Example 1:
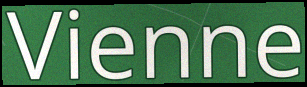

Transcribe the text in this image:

Vienne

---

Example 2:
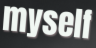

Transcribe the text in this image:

myself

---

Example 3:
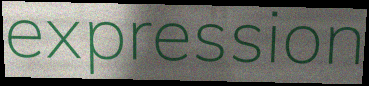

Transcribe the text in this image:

expression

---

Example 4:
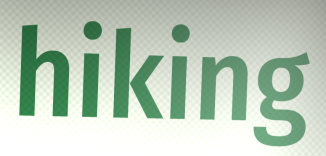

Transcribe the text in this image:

hiking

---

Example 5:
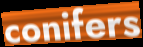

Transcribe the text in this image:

conifers